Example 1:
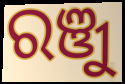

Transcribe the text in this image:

ରଞ୍ଜୁ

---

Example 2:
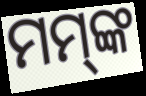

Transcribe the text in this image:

ମମ୍‍ଙ୍କ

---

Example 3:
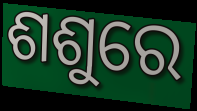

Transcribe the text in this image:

ଶଶୁରେ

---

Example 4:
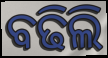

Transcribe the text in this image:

ବଢିଲି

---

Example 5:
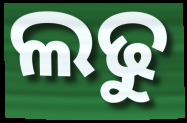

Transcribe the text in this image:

ଲଢୁ